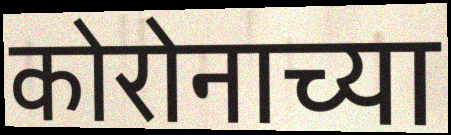
कोरोनाच्या